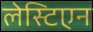
लेस्टिएन